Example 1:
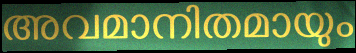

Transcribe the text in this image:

അവമാനിതമായും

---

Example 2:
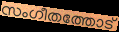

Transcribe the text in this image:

സംഗീതത്തോട്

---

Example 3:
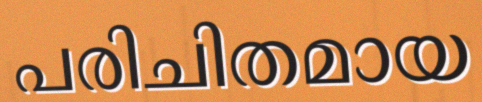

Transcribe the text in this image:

പരിചിതമായ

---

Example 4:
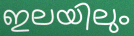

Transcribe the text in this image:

ഇലയിലും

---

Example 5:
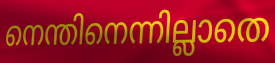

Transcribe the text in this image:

നെന്തിനെന്നില്ലാതെ